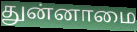
துன்னாமை